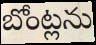
బోంట్లను